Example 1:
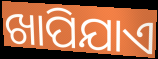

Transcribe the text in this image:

ଖାପିଯାଏ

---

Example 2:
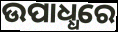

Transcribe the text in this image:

ଉପାଧ୍ଧରେ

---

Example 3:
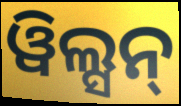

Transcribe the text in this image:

ୱିଲ୍ସନ୍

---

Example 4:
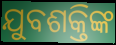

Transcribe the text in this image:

ଯୁବଶକ୍ତିଙ୍କ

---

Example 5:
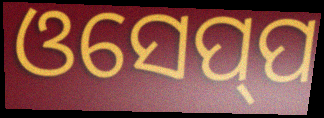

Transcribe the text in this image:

ଓସେପ୍‍ପ